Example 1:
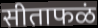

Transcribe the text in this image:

सीताफळं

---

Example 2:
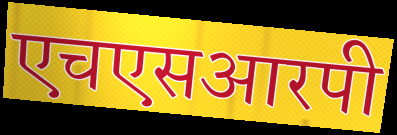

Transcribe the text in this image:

एचएसआरपी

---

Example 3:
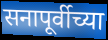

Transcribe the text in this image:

सनापूर्वीच्या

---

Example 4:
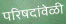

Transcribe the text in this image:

परिषदांवेळी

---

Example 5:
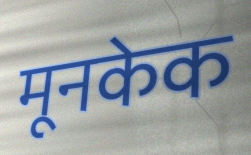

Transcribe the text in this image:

मूनकेक